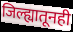
जिल्ह्यातूनही